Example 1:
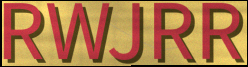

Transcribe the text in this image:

RWJRR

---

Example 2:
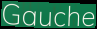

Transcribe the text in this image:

Gauche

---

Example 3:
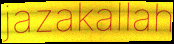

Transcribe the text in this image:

jazakallah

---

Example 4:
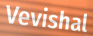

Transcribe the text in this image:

Vevishal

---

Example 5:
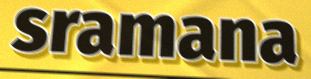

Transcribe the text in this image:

sramana